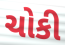
ચોકી